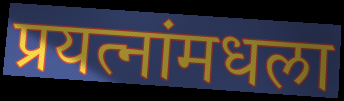
प्रयत्नांमधला